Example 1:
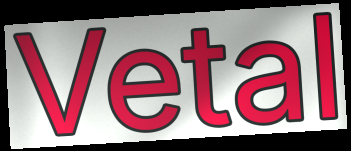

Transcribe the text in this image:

Vetal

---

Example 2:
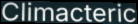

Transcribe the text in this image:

Climacteric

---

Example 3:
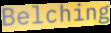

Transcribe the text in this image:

Belching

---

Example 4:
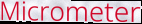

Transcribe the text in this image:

Micrometer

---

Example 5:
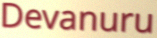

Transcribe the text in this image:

Devanuru